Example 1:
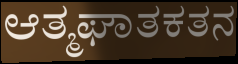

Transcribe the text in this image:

ಆತ್ಮಘಾತಕತನ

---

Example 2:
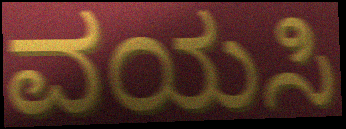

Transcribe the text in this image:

ವಯಸಿ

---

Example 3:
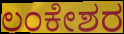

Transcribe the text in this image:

ಲಂಕೇಶರ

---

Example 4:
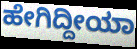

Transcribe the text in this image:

ಹೇಗಿದ್ದೀಯಾ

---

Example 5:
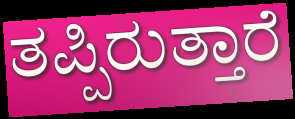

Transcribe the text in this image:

ತಪ್ಪಿರುತ್ತಾರೆ